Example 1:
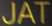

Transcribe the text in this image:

JAT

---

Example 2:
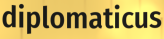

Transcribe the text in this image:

diplomaticus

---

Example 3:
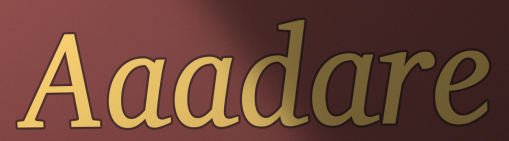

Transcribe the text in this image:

Aaadare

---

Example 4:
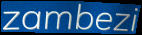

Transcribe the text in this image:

zambezi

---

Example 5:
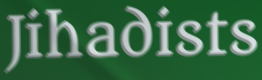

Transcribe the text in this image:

Jihadists